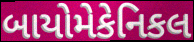
બાયોમેકેનિકલ